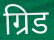
ग्रिड